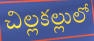
చిల్లకల్లులో